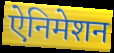
ऐनिमेशन